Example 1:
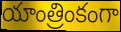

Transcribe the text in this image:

యాంత్రింకంగా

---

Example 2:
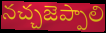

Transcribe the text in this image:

నచ్చజెప్పాలి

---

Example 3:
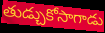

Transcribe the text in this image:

తుడ్చుకోసాగాడు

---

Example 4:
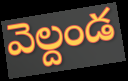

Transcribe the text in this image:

వెల్దండ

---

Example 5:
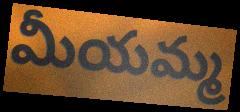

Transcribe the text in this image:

మీయమ్మ